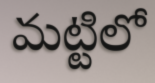
మట్టిలో